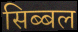
सिब्बल